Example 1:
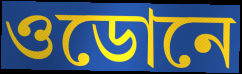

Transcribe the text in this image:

ওডোনে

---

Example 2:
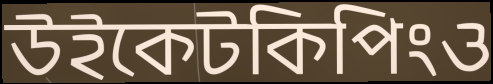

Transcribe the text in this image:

উইকেটকিপিংও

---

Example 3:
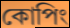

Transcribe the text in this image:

কোপিং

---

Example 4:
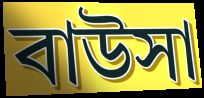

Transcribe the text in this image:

বাউসা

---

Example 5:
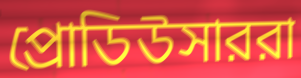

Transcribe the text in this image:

প্রোডিউসাররা